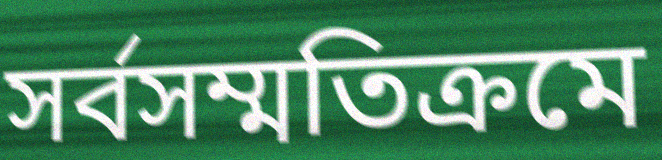
সর্বসম্মতিক্রমে